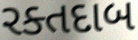
રક્તદાબ